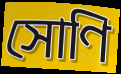
সোণি